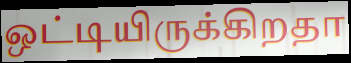
ஒட்டியிருக்கிறதா